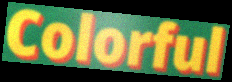
Colorful